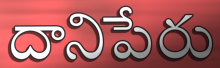
దానిపేరు